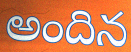
అందిన